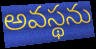
అవస్థను